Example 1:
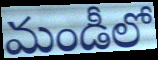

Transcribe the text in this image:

మండీలో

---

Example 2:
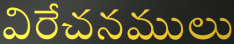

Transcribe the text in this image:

విరేచనములు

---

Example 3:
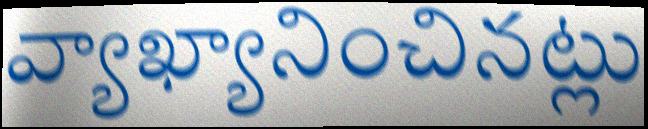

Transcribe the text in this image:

వ్యాఖ్యానించినట్లు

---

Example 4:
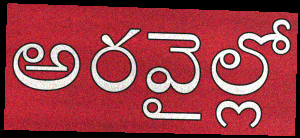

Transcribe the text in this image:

అరవైల్లో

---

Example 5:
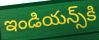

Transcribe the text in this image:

ఇండియన్స్‌కి